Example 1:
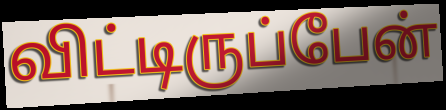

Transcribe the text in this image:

விட்டிருப்பேன்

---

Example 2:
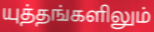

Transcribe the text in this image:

யுத்தங்களிலும்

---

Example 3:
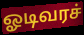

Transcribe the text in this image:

ஓடிவரச்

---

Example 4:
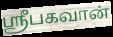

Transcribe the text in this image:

ஸ்ரீபகவான்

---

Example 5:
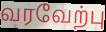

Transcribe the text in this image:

வரவேற்பு